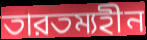
তারতম্যহীন